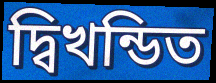
দ্বিখন্ডিত